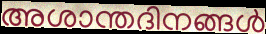
അശാന്തദിനങ്ങൾ